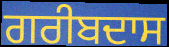
ਗਰੀਬਦਾਸ